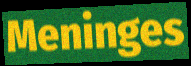
Meninges